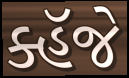
ક્હૅજે